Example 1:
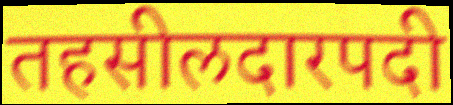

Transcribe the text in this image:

तहसीलदारपदी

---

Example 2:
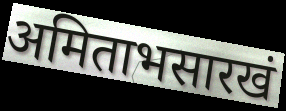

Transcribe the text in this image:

अमिताभसारखं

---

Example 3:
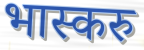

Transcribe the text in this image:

भास्करु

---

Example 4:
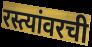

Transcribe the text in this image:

रस्त्यांवरची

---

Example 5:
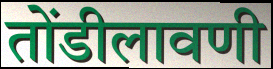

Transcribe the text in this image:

तोंडीलावणी